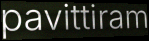
pavittiram